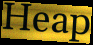
Heap